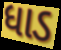
ધાડ